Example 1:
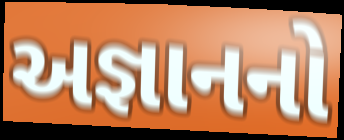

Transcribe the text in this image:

અજ્ઞાનનો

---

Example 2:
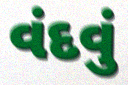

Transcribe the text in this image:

વંદવું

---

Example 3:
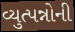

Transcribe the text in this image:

વ્યુત્પન્નોની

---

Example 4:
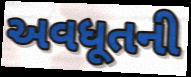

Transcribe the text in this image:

અવધૂતની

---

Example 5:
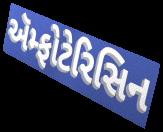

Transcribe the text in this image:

ઍમ્ફોટેરિસિન